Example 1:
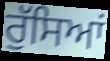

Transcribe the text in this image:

ਰੁੱਸਿਆਂ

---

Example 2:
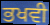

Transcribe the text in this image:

ਭਖਵੀ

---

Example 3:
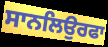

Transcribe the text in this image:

ਸਾਨਲਿਉਰਫਾ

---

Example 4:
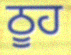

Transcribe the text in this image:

ਠੂਹ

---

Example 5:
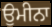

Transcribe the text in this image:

ਉਮੀਨਾ